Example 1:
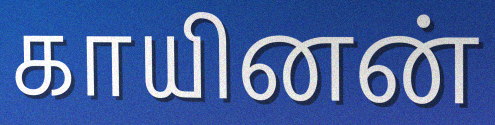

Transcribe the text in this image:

காயினன்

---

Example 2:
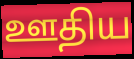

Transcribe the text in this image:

ஊதிய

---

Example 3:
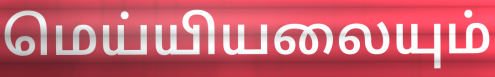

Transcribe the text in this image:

மெய்யியலையும்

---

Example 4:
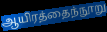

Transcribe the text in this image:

ஆயிரத்தைந்நூறு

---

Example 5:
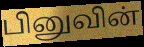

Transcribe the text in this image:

பினுவின்